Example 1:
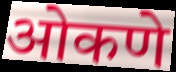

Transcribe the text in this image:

ओकणे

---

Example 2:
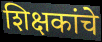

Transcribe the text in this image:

शिक्षकांचे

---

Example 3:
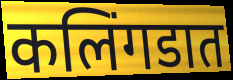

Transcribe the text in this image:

कलिंगडात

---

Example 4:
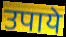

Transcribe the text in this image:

उपाये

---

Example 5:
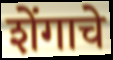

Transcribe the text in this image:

शेंगाचे